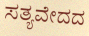
ಸತ್ಯವೇದದ